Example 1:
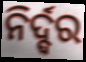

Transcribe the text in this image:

ନିର୍ଦ୍ଦର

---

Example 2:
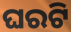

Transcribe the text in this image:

ଘରଟି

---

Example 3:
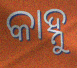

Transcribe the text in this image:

କାହ୍ନୁ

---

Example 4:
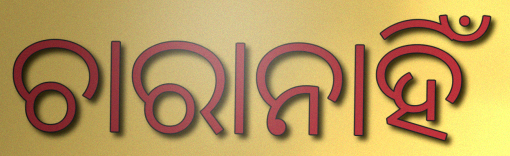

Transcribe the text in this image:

ଚାରାନାହିଁ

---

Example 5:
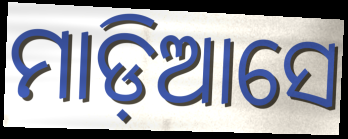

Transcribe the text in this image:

ମାଡ଼ିଆସେ